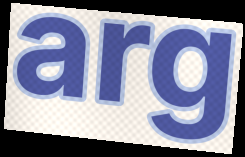
arg